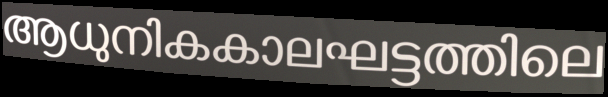
ആധുനികകാലഘട്ടത്തിലെ